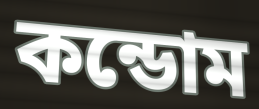
কন্ডোম